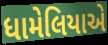
ધામેલિયાએ